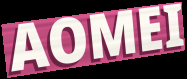
AOMEI